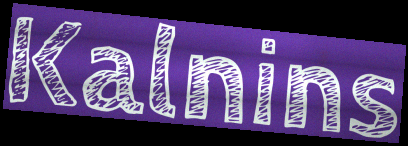
Kalnins